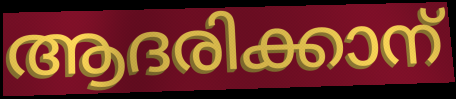
ആദരിക്കാന്